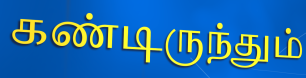
கண்டிருந்தும்